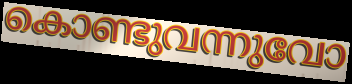
കൊണ്ടുവന്നുവോ